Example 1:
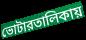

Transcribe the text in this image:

ভোটারতালিকায়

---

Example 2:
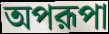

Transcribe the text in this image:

অপরূপা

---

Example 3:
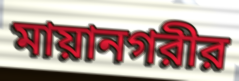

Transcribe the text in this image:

মায়ানগরীর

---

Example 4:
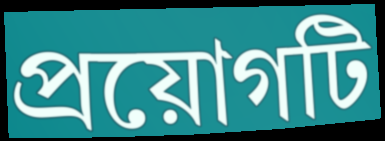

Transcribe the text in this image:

প্রয়োগটি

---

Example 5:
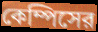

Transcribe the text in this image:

কেম্পিসের